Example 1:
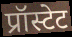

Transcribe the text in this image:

प्रॉस्टेट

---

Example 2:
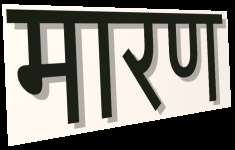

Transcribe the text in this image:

मारण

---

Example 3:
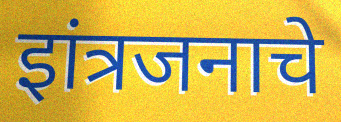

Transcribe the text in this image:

इांत्रजनाचे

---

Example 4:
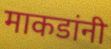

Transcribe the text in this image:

माकडांनी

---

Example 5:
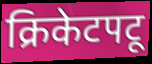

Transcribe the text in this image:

क्रिकेटपटू